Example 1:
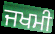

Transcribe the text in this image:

ਜਖਮੀ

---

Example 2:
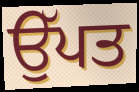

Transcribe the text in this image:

ਉੱਪਤ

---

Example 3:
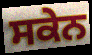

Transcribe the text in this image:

ਸਕੇਨ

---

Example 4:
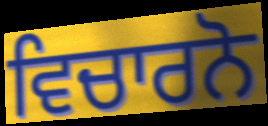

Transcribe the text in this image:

ਵਿਚਾਰਨੋ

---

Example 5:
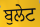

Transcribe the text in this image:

ਬੁਲੇਟ